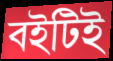
বইটিই